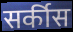
सर्कीस